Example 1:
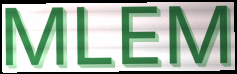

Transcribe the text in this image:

MLEM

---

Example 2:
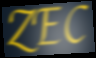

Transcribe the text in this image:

ZEC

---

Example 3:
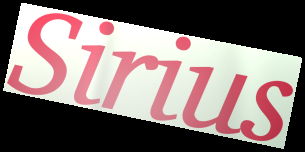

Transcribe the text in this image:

Sirius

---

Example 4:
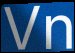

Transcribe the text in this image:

Vn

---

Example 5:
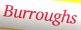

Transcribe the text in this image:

Burroughs